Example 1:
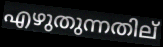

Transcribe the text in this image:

എഴുതുന്നതില്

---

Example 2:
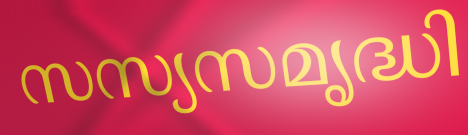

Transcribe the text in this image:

സസ്യസമൃദ്ധി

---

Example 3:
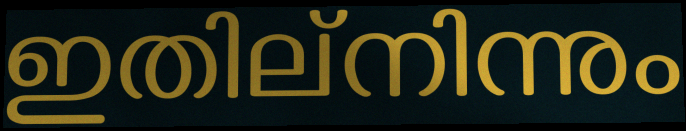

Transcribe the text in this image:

ഇതില്നിന്നും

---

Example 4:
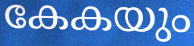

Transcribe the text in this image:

കേകയും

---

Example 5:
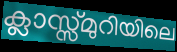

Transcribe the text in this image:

ക്ലാസ്സ്മുറിയിലെ